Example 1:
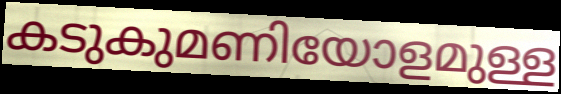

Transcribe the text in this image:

കടുകുമണിയോളമുള്ള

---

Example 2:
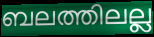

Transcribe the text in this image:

ബലത്തിലല്ല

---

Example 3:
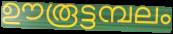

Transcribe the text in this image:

ഊരൂട്ടമ്പലം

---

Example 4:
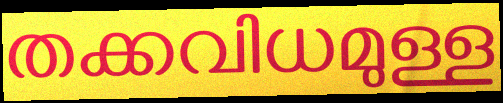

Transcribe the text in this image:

തക്കവിധമുള്ള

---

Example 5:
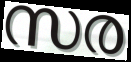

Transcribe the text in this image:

സര